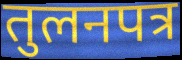
तुलनपत्र